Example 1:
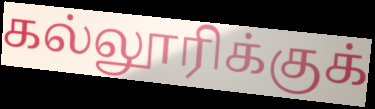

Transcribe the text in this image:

கல்லூரிக்குக்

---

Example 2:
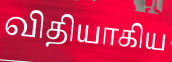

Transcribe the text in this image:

விதியாகிய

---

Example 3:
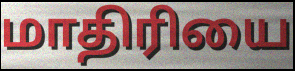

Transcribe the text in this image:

மாதிரியை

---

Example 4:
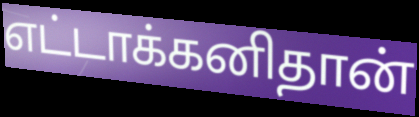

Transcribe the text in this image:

எட்டாக்கனிதான்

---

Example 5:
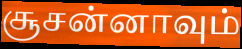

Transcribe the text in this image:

சூசன்னாவும்